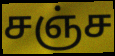
சஞ்ச